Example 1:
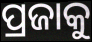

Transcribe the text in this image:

ପ୍ରଜାକୁ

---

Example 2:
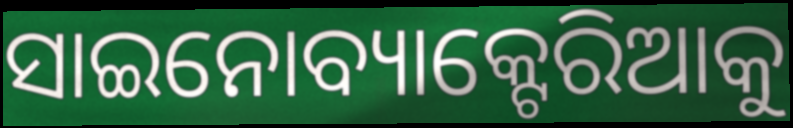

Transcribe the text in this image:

ସାଇନୋବ୍ୟାକ୍ଟେରିଆକୁ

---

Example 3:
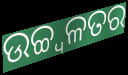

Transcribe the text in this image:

ଉଚ୍ଚ୍ୱଳତର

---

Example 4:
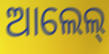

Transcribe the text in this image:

ଆଲେଲ୍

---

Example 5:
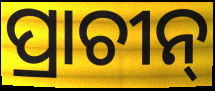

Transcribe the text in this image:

ପ୍ରାଚୀନ୍